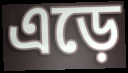
এড়ে